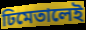
ঢিমেতালেই